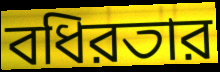
বধিরতার